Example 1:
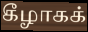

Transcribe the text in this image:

கீழாகக்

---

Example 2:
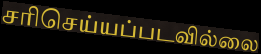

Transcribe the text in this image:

சரிசெய்யப்படவில்லை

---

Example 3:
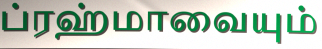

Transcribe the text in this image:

ப்ரஹ்மாவையும்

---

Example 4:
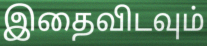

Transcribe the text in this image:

இதைவிடவும்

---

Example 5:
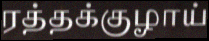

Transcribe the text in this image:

ரத்தக்குழாய்